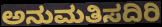
ಅನುಮತಿಸದಿರಿ